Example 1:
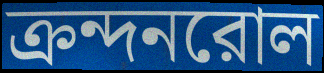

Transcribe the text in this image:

ক্রন্দনরোল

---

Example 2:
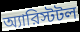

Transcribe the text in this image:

অ্যারিস্টটল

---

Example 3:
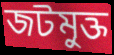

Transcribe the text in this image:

জটমুক্ত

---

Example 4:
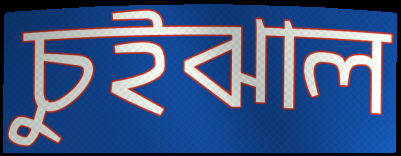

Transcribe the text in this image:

চুইঝাল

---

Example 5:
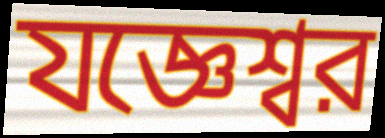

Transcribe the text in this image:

যজ্ঞেশ্বর